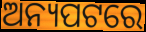
ଅନ୍ୟପଟରେ